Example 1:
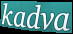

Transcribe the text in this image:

kadva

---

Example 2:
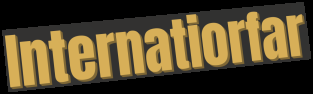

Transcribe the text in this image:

Internatiorfar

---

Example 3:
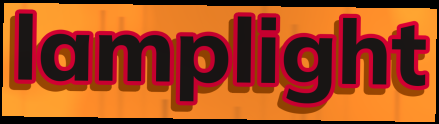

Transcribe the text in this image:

lamplight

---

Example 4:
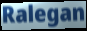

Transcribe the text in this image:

Ralegan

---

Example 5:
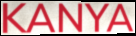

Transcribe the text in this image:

KANYA